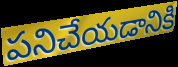
పనిచేయడానికి